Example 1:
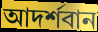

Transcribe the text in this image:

আদর্শবান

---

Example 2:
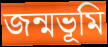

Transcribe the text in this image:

জন্মভূমি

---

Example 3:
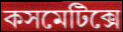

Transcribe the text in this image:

কসমেটিক্সে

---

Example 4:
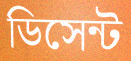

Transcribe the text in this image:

ডিসেন্ট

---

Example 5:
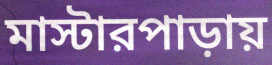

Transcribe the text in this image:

মাস্টারপাড়ায়